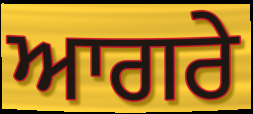
ਆਗਰੇ